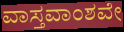
ವಾಸ್ತವಾಂಶವೇ